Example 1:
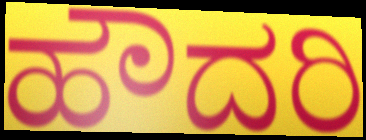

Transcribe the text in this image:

ಹೌದರಿ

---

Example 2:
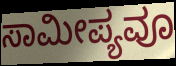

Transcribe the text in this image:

ಸಾಮೀಪ್ಯವೂ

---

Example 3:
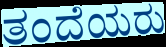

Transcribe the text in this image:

ತಂದೆಯರು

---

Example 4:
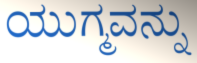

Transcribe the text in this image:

ಯುಗ್ಮವನ್ನು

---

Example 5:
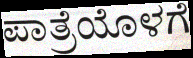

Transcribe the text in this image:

ಪಾತ್ರೆಯೊಳಗೆ